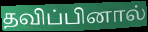
தவிப்பினால்